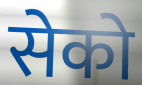
सेको